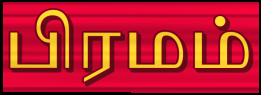
பிரமம்